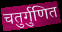
चतुर्गुणित